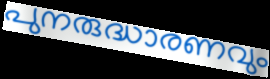
പുനരുദ്ധാരണവും